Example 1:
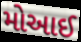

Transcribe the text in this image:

મોઆઈ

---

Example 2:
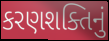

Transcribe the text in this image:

કરણશક્તિનું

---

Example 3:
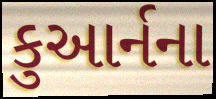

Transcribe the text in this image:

કુઆર્નના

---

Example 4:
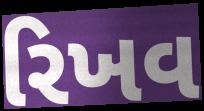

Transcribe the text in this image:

રિખવ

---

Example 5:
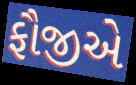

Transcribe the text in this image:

ફૌજીએ